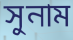
সুনাম